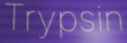
Trypsin